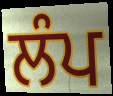
ਲੰਪ